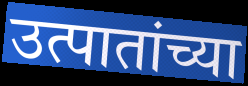
उत्पातांच्या